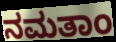
ನಮತಾಂ